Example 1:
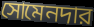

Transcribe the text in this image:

সোমেনদার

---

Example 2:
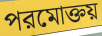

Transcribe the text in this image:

পরমোক্তয়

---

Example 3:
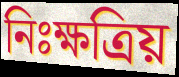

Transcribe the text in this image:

নিঃক্ষত্রিয়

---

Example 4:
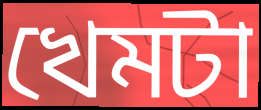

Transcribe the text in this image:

খেমটা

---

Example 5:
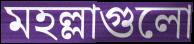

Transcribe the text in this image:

মহল্লাগুলো